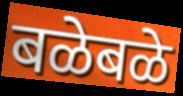
बळेबळे